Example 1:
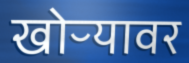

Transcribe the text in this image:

खोऱ्यावर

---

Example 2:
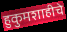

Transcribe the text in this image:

हुकुमशाहीचे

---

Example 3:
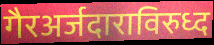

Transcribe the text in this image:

गैरअर्जदाराविरुध्द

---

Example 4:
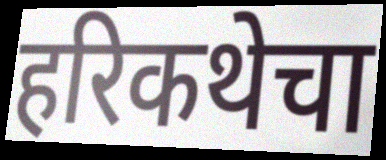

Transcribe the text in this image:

हरिकथेचा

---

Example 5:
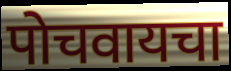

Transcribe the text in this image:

पोचवायचा